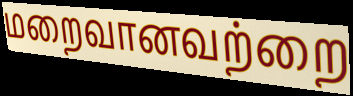
மறைவானவற்றை